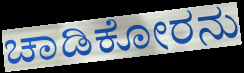
ಚಾಡಿಕೋರನು